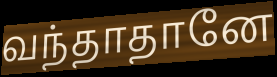
வந்தாதானே